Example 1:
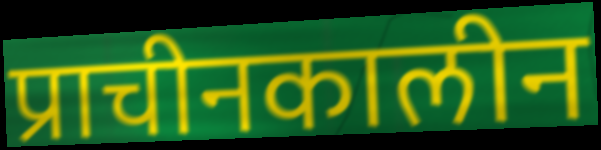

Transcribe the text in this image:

प्राचीनकालीन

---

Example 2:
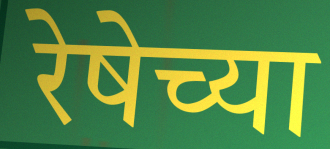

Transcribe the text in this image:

रेषेच्या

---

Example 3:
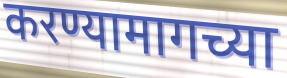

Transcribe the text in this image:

करण्यामागच्या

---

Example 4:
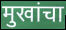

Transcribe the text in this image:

मुखांचा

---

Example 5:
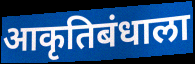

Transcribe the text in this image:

आकृतिबंधाला